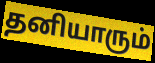
தனியாரும்